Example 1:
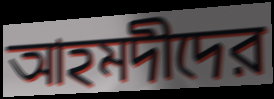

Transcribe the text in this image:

আহমদীদের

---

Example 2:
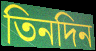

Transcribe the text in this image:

তিনদিন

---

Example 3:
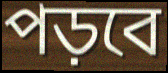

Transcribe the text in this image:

পড়বে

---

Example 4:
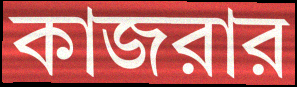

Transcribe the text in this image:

কাজরার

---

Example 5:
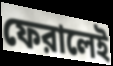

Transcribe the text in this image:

ফেরালেই